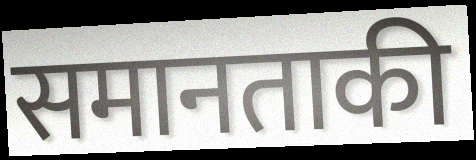
समानताकी